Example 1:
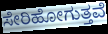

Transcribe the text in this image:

ಸೇರಿಹೋಗುತ್ತವೆ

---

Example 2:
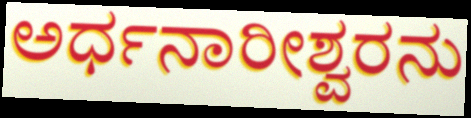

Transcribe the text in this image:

ಅರ್ಧನಾರೀಶ್ವರನು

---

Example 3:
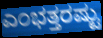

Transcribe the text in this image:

ಎಂಭತ್ತರಷ್ಟು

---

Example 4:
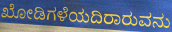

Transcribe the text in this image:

ಖೋಡಿಗಳೆಯದಿರಾರುವನು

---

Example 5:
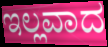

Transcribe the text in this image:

ಇಲ್ಲವಾದ